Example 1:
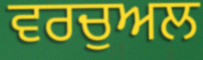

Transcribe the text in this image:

ਵਰਚੁਅਲ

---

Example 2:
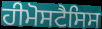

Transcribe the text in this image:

ਹੀਮੋਸਟੈਸਿਸ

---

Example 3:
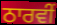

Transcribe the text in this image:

ਠਾਰਵੀਂ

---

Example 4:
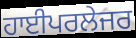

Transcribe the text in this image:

ਹਾਈਪਰਲੇਜਰ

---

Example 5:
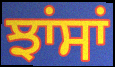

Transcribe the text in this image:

ਝਾਂਸਾਂ